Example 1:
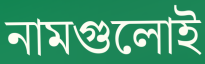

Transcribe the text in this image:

নামগুলোই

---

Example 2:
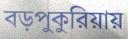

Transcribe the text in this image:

বড়পুকুরিয়ায়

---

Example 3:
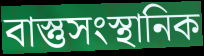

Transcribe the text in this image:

বাস্তুসংস্থানিক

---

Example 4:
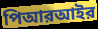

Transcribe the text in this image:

পিআরআইর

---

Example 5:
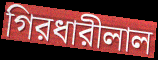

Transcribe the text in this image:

গিরধারীলাল